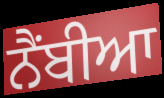
ਨੈਂਬੀਆ